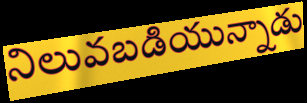
నిలువబడియున్నాడు